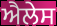
ਐਲੇਸ